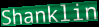
Shanklin